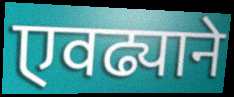
एवढ्याने